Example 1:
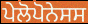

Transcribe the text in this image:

ਪੇਲੋਪੋਨੇਸਸ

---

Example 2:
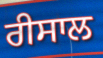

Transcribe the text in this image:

ਰੀਸਾਲ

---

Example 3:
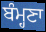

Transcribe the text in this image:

ਬੰਮ੍ਹਣਾ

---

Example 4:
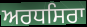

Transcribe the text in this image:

ਅਰਧਸਿਰਾ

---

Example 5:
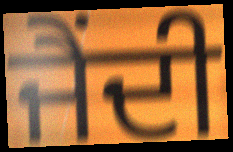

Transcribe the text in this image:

ਜੈਂਦੀ